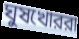
ঘুষখোররা